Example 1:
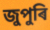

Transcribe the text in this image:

জুপুৰি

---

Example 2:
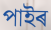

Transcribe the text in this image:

পাইৰ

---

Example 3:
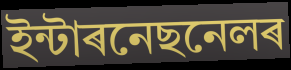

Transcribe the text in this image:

ইন্টাৰনেছনেলৰ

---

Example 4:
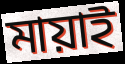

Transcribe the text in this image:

মায়াই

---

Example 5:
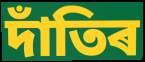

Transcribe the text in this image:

দাঁতিৰ